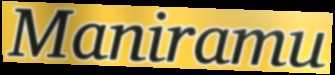
Maniramu